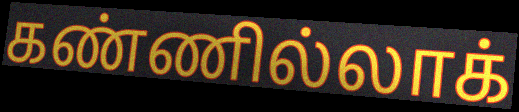
கண்ணில்லாக்